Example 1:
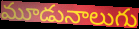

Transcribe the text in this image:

మూడునాలుగు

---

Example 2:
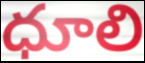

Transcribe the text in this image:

ధూలి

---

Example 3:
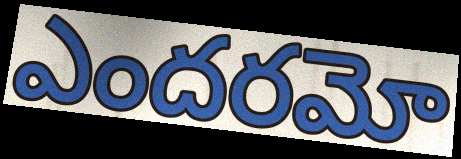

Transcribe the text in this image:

ఎందరమో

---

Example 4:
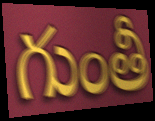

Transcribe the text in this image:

గుంతీ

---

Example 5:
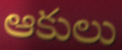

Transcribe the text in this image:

ఆకులు